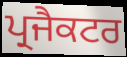
ਪ੍ਰਜੈਕਟਰ